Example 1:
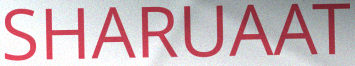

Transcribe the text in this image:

SHARUAAT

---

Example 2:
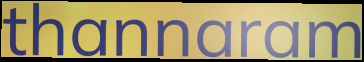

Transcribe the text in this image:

thannaram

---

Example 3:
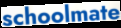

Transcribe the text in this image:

schoolmate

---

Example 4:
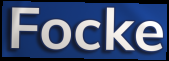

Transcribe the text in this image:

Focke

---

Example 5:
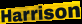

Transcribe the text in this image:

Harrison